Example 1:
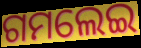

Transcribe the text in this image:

ଗମଲେଇ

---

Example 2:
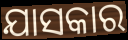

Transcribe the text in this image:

ଯାସକାର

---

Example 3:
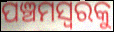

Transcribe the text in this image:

ପଞ୍ଚମସ୍ୱରକୁ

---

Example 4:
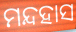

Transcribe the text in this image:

ମନ୍ଦହାସ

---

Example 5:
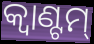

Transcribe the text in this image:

କ୍ୱାଣ୍ଟମ୍